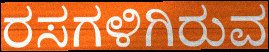
ರಸಗಳಿಗಿರುವ